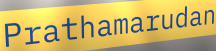
Prathamarudan